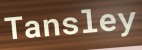
Tansley